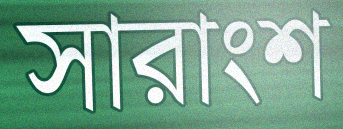
সারাংশ